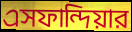
এসফান্দিয়ার